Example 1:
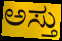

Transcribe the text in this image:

ಅಸ್ತು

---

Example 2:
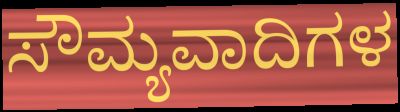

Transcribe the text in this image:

ಸೌಮ್ಯವಾದಿಗಳ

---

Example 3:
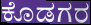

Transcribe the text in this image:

ಕೊಡಗರ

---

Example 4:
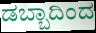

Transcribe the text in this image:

ಡಬ್ಬಾದಿಂದ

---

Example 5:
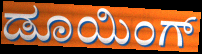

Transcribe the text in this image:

ಡೂಯಿಂಗ್